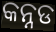
କନ୍ନଡ